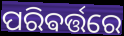
ପରିଵର୍ତ୍ତରେ